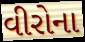
વીરોના